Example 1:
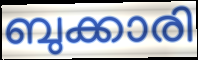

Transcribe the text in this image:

ബുക്കാരി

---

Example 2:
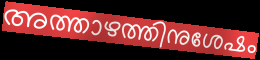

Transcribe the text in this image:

അത്താഴത്തിനുശേഷം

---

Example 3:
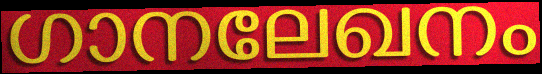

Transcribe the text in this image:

ഗാനലേഖനം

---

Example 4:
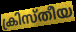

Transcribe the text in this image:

ക്രിസ്തീയ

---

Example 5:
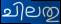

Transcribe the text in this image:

ചിലതു